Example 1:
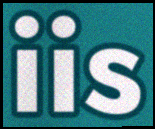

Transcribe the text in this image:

iis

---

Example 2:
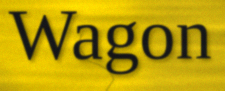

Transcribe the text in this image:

Wagon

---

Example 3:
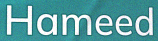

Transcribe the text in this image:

Hameed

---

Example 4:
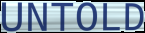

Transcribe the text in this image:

UNTOLD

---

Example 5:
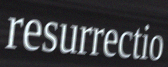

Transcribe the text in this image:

resurrectio